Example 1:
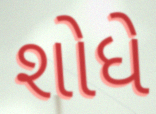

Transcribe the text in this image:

શોધે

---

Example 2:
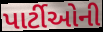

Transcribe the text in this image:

પાર્ટીઓની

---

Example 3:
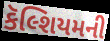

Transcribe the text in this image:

કૅલ્શિયમની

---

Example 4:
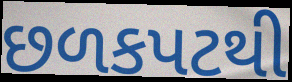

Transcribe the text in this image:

છળકપટથી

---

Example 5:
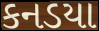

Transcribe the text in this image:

કનડયા